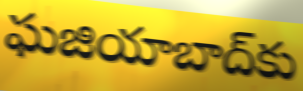
ఘజియాబాద్‌కు